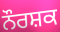
ਨੌਰਸ਼ਕ